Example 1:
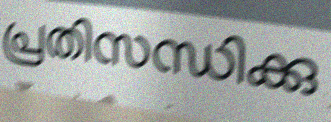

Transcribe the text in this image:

പ്രതിസന്ധിക്കു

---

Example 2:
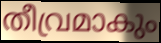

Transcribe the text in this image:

തീവ്രമാകും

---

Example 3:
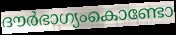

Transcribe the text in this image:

ദൗർഭാഗ്യംകൊണ്ടോ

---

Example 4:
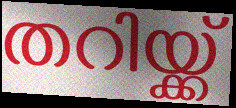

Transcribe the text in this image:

തറിയ്ക്ക്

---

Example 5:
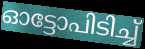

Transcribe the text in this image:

ഓട്ടോപിടിച്ച്